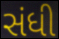
સંધી